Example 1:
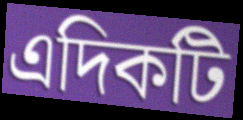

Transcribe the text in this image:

এদিকটি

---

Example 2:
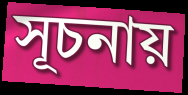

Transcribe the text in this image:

সূচনায়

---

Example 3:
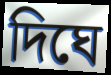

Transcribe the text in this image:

দিঘে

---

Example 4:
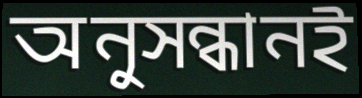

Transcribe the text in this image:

অনুসন্ধানই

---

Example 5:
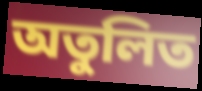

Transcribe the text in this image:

অতুলিত